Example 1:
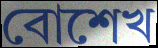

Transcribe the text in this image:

বোশেখ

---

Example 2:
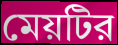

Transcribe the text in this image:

মেয়টির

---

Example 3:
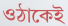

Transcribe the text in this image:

ওঠাকেই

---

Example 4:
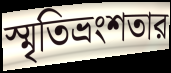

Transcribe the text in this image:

স্মৃতিভ্রংশতার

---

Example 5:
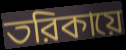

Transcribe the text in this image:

তরিকায়ে